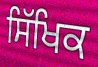
ਸਿੱਖਿਕ